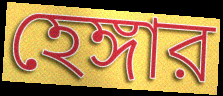
হেঙ্গার